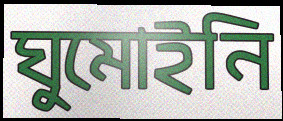
ঘুমোইনি